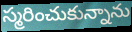
స్మరించుకున్నాను